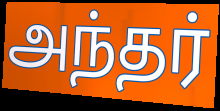
அந்தர்